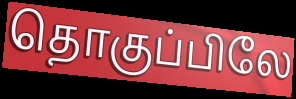
தொகுப்பிலே